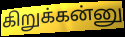
கிறுக்கன்னு